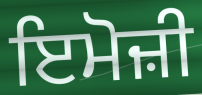
ਇਮੋਜ਼ੀ